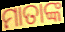
ମାତାଙ୍କ